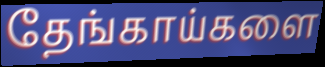
தேங்காய்களை